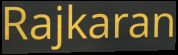
Rajkaran